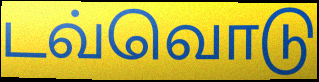
டவ்வொடு